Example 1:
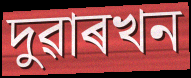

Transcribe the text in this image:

দুৱাৰখন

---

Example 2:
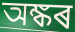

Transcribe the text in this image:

অঙ্কৰ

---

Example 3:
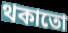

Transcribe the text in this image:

থকাতো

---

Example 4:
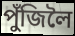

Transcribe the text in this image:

পুঁজিলৈ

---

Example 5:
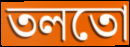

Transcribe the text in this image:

তলতো